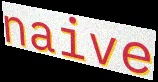
naive